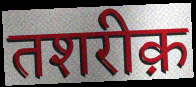
तशरीक़